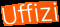
Uffizi